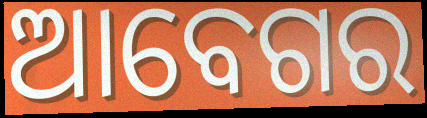
ଆବେଗର